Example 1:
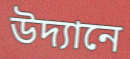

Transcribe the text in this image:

উদ্যানে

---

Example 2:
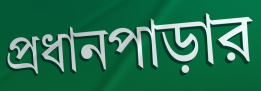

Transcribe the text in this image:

প্রধানপাড়ার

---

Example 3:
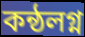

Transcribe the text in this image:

কন্ঠলগ্ন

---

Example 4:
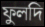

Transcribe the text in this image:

ফুলদি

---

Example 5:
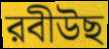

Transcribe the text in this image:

রবীউছ